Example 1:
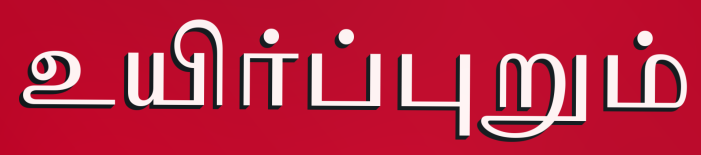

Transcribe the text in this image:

உயிர்ப்புறும்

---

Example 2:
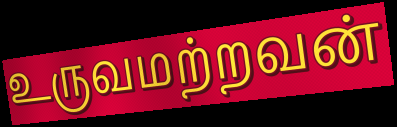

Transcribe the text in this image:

உருவமற்றவன்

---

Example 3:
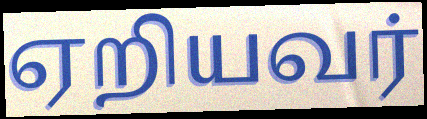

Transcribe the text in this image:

ஏறியவர்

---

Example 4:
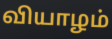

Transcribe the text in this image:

வியாழம்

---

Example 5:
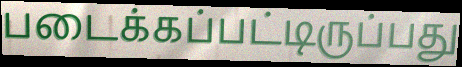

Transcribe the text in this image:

படைக்கப்பட்டிருப்பது